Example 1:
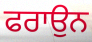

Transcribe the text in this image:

ਫਰਾਉਨ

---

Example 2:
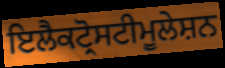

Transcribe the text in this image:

ਇਲੈਕਟ੍ਰੋਸਟੀਮੂਲੇਸ਼ਨ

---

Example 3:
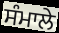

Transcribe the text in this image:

ਸੰਮਾਲੇ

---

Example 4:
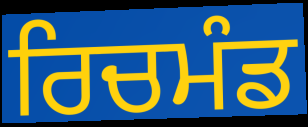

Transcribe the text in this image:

ਰਿਚਮੰਡ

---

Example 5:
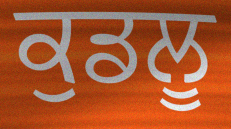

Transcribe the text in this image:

ਕੁਡਲੂ